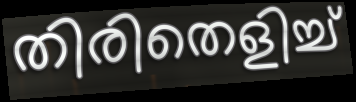
തിരിതെളിച്ച്